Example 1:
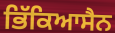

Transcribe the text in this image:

ਭਿੱਕਿਆਸੈਨ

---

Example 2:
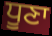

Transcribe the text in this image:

ਧੂਣਾ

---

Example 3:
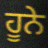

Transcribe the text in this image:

ਹੂਨੇ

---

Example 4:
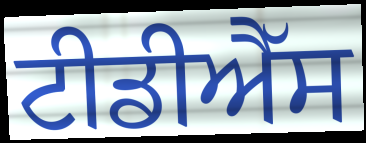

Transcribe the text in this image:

ਟੀਡੀਐੱਸ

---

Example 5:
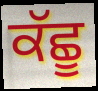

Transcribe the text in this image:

ਕੱਛੂ